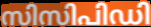
സിസിപിഡി